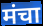
मंचा